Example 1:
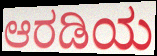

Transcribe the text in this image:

ಆರಡಿಯ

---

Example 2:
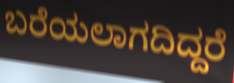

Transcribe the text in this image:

ಬರೆಯಲಾಗದಿದ್ದರೆ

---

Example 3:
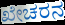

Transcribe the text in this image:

ಖೇಚರನ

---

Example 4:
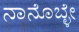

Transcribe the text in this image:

ನಾನೊಬ್ಳೇ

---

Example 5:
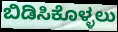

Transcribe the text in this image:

ಬಿಡಿಸಿಕೊಳ್ಳಲು